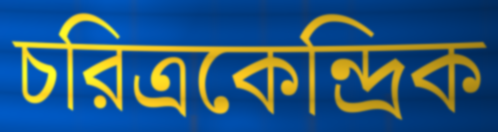
চরিত্রকেন্দ্রিক